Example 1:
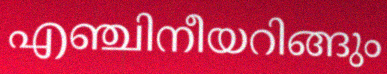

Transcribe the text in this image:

എഞ്ചിനീയറിങ്ങും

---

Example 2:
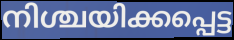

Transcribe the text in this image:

നിശ്ചയിക്കപ്പെട്ട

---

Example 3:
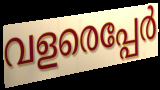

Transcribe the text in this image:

വളരെപ്പേർ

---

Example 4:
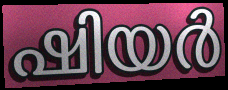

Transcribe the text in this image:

ഷിയർ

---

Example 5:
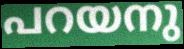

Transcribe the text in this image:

പറയനു